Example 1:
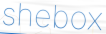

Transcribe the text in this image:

shebox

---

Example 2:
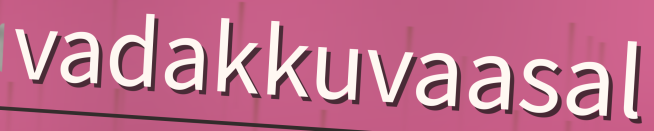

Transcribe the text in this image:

vadakkuvaasal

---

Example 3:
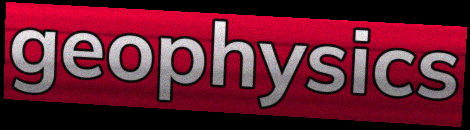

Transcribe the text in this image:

geophysics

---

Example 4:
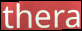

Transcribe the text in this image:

thera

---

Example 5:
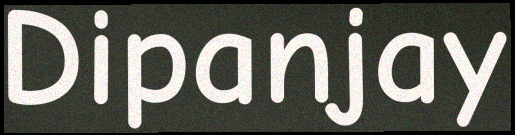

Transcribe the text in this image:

Dipanjay